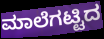
ಮಾಲೆಗಟ್ಟಿದ